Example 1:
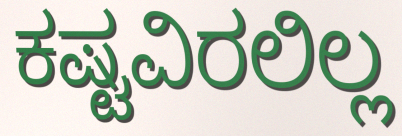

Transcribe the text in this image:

ಕಷ್ಟವಿರಲಿಲ್ಲ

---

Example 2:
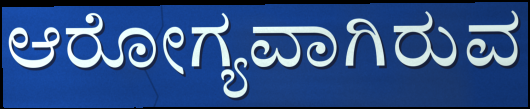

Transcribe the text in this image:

ಆರೋಗ್ಯವಾಗಿರುವ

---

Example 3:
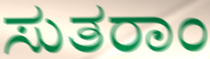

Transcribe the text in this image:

ಸುತರಾಂ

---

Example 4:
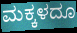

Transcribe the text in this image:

ಮಕ್ಕಳದೂ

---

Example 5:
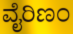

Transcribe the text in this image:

ವೈರಿಣಂ